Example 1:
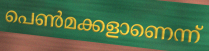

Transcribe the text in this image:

പെൺമക്കളാണെന്ന്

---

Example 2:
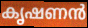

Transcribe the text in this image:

കൃഷണൻ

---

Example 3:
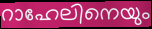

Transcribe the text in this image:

റാഹേലിനെയും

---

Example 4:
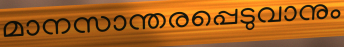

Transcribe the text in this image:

മാനസാന്തരപ്പെടുവാനും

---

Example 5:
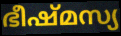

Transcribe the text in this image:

ഭീഷ്മസ്യ